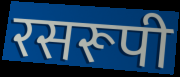
रसरूपी